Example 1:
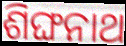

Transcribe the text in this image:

ଶିଙ୍ଘନାଥ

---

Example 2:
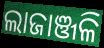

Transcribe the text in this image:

ଲାଜାଞ୍ଜଳି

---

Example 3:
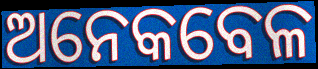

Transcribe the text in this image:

ଅନେକବେଳ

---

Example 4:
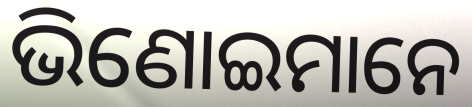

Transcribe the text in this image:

ଭିଣୋଇମାନେ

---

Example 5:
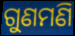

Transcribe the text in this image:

ଗୁଣମଣି